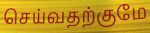
செய்வதற்குமே